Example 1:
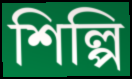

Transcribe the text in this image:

শিল্পি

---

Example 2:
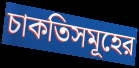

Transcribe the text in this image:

চাকতিসমূহের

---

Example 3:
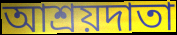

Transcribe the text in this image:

আশ্রয়দাতা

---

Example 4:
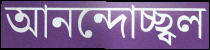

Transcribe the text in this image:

আনন্দোচ্ছ্বল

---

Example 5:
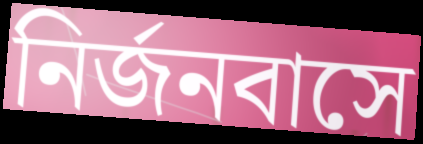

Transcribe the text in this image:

নির্জনবাসে